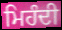
ਮਿਹੰਦੀ